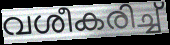
വശീകരിച്ച്